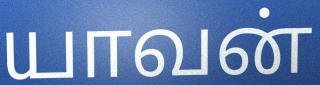
யாவன்